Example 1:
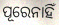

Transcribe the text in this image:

ପୂରେନାହିଁ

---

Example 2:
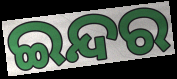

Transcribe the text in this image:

ଇନ୍ଦର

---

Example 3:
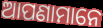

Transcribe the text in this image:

ଆପଣାମାନେ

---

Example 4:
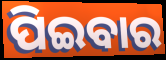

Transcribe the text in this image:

ପିଇବାର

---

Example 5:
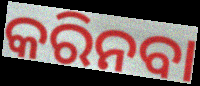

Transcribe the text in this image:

କରିନବା